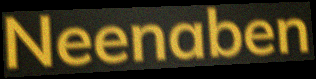
Neenaben